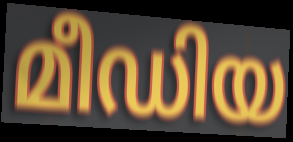
മീഡിയ